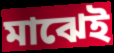
মাঝেই